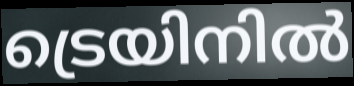
ട്രെയിനിൽ